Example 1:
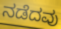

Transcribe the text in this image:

ನಡೆದವು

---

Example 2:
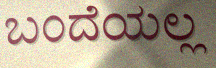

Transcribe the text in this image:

ಬಂದೆಯಲ್ಲ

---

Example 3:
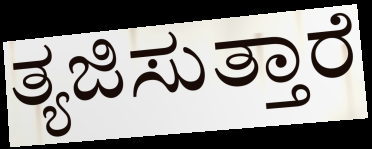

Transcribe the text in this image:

ತ್ಯಜಿಸುತ್ತಾರೆ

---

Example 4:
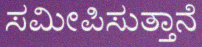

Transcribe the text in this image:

ಸಮೀಪಿಸುತ್ತಾನೆ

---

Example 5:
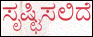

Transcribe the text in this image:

ಸೃಷ್ಟಿಸಲಿದೆ